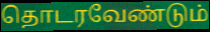
தொடரவேண்டும்